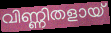
വിണ്ണിതളായ്